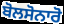
ਬੋਲਸੋਨਾਰੋ